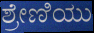
ಶ್ರೇಣಿಯು